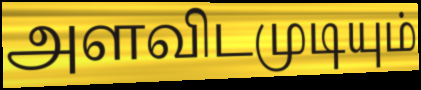
அளவிடமுடியும்